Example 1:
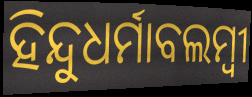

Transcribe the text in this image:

ହିନ୍ଦୁଧର୍ମାବଲମ୍ବୀ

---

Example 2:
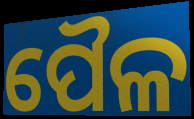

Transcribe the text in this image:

ପୈଳ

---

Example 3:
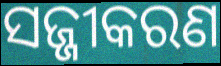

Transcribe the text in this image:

ସଜ୍ଜୀକରଣ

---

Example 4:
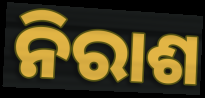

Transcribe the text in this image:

ନିରାଶ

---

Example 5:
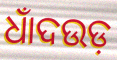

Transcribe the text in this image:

ଧାଁଦଉଡ଼